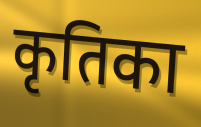
कृतिका